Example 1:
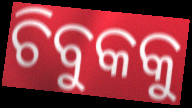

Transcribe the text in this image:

ଚିବୁକକୁ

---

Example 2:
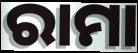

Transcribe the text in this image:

ରାମା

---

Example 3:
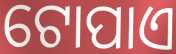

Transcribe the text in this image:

ଟୋପାଏ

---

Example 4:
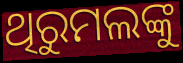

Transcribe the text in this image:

ଥିରୁମଲଙ୍କୁ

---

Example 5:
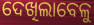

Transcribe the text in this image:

ଦେଖିଲାବେଳୁ